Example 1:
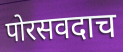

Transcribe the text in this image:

पोरसवदाच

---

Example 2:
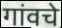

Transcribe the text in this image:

गांवचे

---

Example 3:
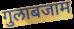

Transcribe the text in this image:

गुलाबजाम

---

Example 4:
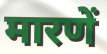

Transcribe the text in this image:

मारणें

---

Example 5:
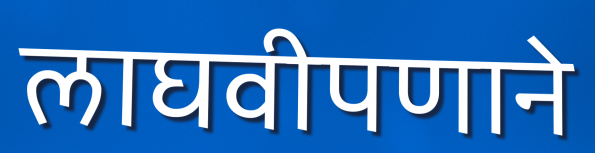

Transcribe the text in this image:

लाघवीपणाने